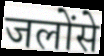
जलोंसे